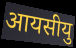
आयसीयु